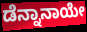
ಡೆನ್ನಾನಾಯೇ